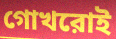
গোখরোই